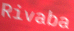
Rivaba